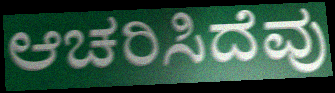
ಆಚರಿಸಿದೆವು